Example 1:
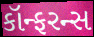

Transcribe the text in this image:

કૉન્ફરન્સ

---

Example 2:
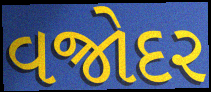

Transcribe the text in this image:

વજ્રોદર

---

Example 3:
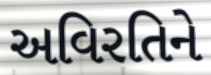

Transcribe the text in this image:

અવિરતિને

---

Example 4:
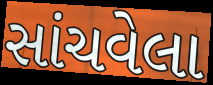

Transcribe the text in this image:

સાંચવેલા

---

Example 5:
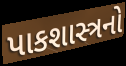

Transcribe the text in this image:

પાકશાસ્ત્રનો